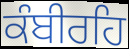
ਕੰਬੀਰਹਿ